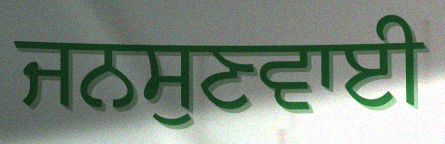
ਜਨਸੁਣਵਾਈ